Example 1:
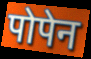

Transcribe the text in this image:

पोपेन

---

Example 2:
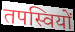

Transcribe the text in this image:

तपस्वियों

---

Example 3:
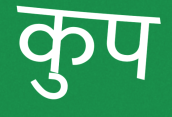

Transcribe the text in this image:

कुप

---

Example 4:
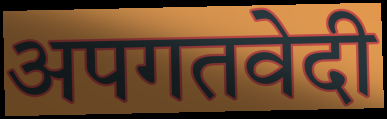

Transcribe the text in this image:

अपगतवेदी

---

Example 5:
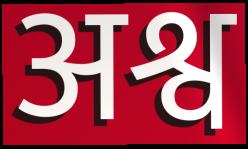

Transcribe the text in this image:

अश्व